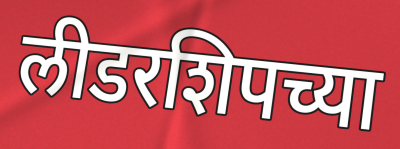
लीडरशिपच्या